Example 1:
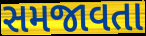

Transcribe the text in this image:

સમજાવતા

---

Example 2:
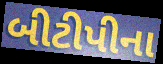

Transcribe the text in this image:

બીટીપીના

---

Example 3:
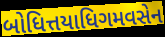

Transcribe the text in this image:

બોધિત્તયાધિગમવસેન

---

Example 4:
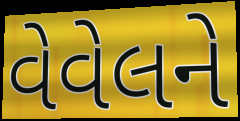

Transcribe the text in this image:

વેવેલને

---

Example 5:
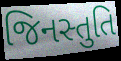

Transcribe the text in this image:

જિનસ્તુતિ